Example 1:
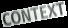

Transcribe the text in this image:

CONTEXT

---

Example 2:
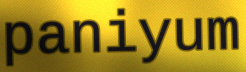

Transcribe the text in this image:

paniyum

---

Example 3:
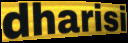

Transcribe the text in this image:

dharisi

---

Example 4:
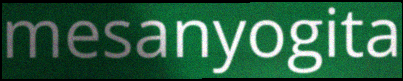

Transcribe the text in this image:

mesanyogita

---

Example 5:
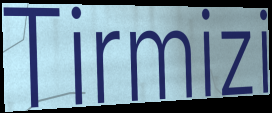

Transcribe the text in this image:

Tirmizi